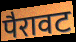
पैरावट